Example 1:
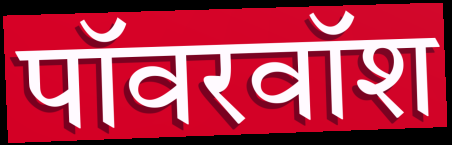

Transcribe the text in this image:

पॉवरवॉश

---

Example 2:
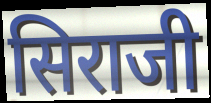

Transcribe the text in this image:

सिराजी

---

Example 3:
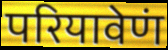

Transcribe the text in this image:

परियावेणं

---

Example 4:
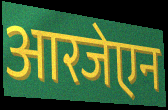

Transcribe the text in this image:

आरजेएन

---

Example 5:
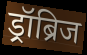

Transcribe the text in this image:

ड्रॉब्रिज